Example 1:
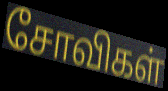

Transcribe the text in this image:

சோவிகள்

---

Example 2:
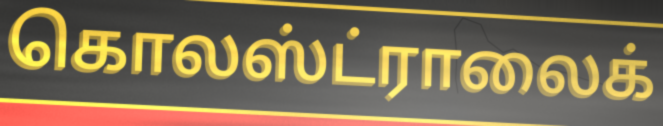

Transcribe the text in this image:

கொலஸ்ட்ராலைக்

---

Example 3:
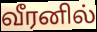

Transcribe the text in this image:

வீரனில்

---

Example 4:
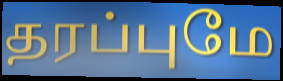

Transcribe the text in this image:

தரப்புமே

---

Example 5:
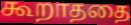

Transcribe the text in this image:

கூறாததை